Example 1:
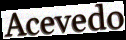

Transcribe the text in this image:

Acevedo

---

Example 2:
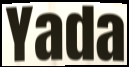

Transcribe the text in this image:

Yada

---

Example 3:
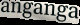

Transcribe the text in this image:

anganga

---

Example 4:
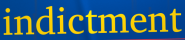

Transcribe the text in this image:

indictment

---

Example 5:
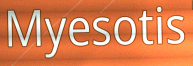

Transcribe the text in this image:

Myesotis